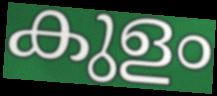
കുളം